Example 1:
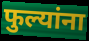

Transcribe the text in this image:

फुल्यांना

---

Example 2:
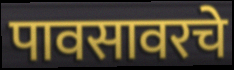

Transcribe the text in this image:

पावसावरचे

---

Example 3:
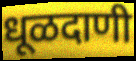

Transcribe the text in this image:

धूळदाणी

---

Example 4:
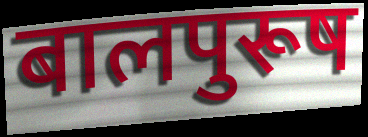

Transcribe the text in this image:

बालपुरूष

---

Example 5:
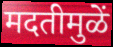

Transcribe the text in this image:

मदतीमुळें